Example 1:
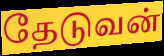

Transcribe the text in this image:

தேடுவன்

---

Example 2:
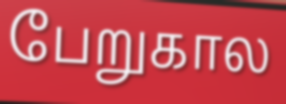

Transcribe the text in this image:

பேறுகால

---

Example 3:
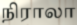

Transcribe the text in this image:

நிராலா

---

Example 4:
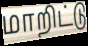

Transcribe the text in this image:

மாறிட்டு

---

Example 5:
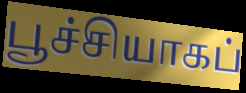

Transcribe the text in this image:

பூச்சியாகப்